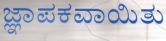
ಜ್ಞಾಪಕವಾಯಿತು